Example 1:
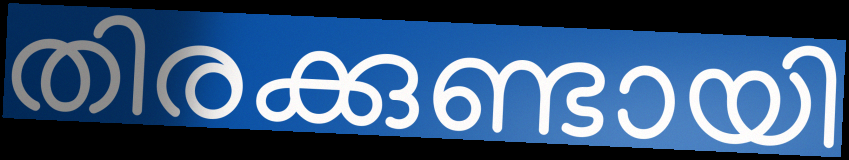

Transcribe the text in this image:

തിരക്കുണ്ടായി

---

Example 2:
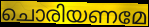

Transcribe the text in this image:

ചൊരിയണമേ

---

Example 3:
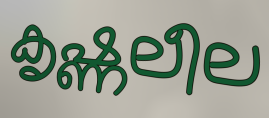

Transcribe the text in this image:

കൃഷ്ണലീല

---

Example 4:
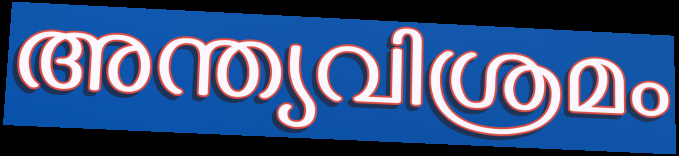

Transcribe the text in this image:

അന്ത്യവിശ്രമം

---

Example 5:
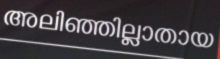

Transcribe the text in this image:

അലിഞ്ഞില്ലാതായ